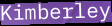
Kimberley